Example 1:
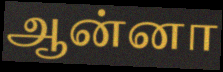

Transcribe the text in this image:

ஆன்னா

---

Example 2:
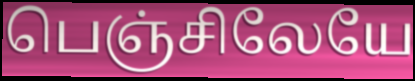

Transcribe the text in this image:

பெஞ்சிலேயே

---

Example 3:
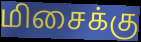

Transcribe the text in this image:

மிசைக்கு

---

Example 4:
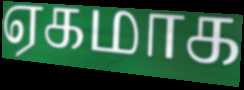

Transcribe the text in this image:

ஏகமாக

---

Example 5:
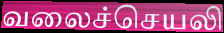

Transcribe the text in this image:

வலைச்செயலி